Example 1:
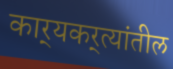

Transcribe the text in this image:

कार्यकर्त्यांतील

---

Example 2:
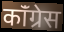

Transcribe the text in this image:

कॉंग्रेस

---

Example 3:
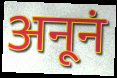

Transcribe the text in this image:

अनूनं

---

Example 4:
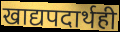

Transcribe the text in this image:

खाद्यपदार्थही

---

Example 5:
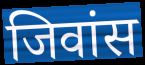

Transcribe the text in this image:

जिवांस